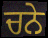
ਚਨੇ